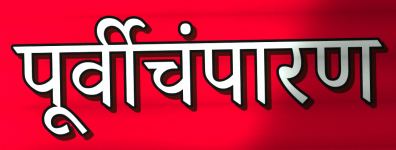
पूर्वीचंपारण